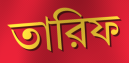
তারিফ